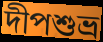
দীপশুভ্র